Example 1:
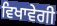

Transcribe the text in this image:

ਵਿਖਾਵੇਗੀ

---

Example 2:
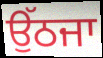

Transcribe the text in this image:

ਉੱਠਜਾ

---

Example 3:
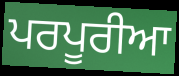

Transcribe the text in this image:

ਪਰਪੂਰੀਆ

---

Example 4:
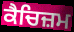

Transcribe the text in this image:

ਕੈਚਿਜ਼ਮ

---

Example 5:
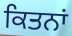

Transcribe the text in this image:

ਕਿਤਨਾਂ